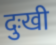
दुःखी